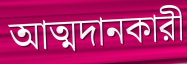
আত্মদানকারী